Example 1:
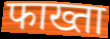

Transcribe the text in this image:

फाख्ता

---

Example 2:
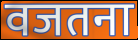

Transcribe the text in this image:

वजतना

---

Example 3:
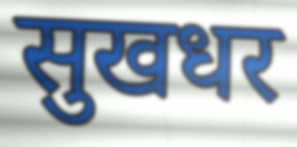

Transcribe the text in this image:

सुखधर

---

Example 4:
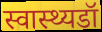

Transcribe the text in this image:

स्वास्थ्यडॉ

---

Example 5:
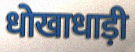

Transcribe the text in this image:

धोखाधाड़ी